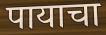
पायाचा